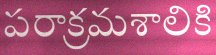
పరాక్రమశాలికి